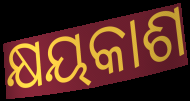
କ୍ଷୟକାଶ